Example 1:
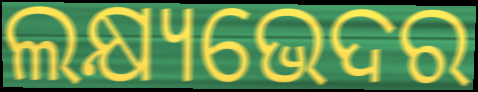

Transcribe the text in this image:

ଲକ୍ଷ୍ୟଭେଦର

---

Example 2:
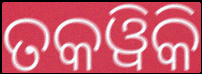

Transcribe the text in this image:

ତକୱିକି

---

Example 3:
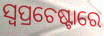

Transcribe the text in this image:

ସ୍ଵପ୍ରଚେଷ୍ଟାରେ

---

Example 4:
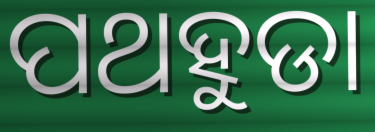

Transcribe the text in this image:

ପଥହୁଡା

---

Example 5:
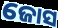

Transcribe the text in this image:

ଜୋସ